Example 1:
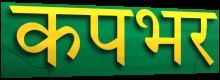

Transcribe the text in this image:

कपभर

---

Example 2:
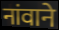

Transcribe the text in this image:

नांवाने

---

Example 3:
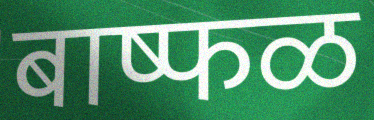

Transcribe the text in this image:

बाष्फळ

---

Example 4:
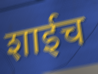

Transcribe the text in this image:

शाईच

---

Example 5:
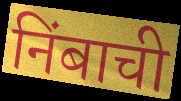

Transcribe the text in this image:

निंबाची